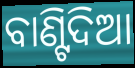
ବାଣ୍ଟିଦିଆ